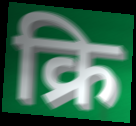
क्रि